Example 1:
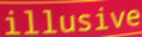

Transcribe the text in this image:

illusive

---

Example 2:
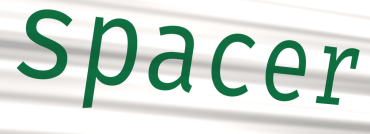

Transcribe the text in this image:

spacer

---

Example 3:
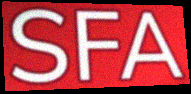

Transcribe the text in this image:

SFA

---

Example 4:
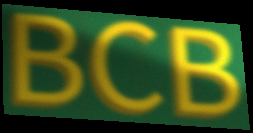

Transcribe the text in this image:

BCB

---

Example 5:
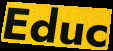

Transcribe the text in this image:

Educ